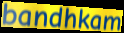
bandhkam